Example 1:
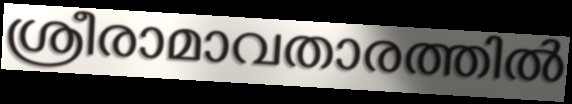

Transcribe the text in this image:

ശ്രീരാമാവതാരത്തിൽ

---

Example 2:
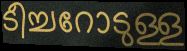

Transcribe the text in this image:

ടീച്ചറോടുള്ള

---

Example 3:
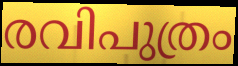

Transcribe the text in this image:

രവിപുത്രം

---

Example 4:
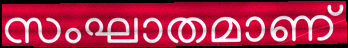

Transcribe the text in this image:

സംഘാതമാണ്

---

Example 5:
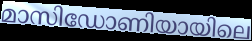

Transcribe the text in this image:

മാസിഡോണിയായിലെ